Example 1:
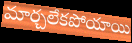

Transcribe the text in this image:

మార్చలేకపోయాయి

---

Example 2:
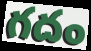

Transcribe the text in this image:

గదం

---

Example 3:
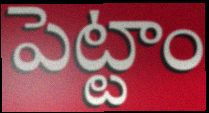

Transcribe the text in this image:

పెట్టాం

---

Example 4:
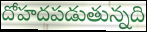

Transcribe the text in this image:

దోహదపడుతున్నది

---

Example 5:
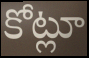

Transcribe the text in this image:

కోట్లూ